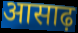
आसाढ़